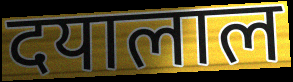
दयालाल